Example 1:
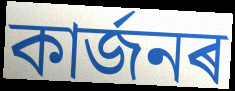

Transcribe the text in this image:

কাৰ্জনৰ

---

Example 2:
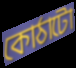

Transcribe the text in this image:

কোঠাটো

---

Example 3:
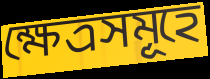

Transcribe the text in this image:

ক্ষেত্ৰসমূহে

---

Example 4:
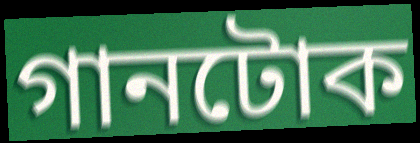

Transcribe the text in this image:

গানটোক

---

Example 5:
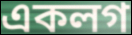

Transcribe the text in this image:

একলগ